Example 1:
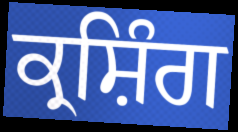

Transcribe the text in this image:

ਕ੍ਰਸ਼ਿੰਗ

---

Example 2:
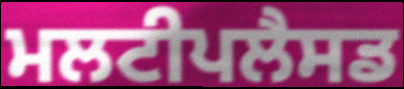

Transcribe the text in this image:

ਮਲਟੀਪਲੈਸਡ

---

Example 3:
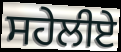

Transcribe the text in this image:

ਸਹੇਲੀਏ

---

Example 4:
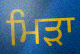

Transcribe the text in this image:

ਮਿੜਾ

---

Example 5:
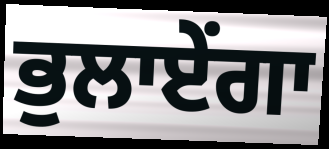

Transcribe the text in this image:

ਭੁਲਾਏਂਗਾ